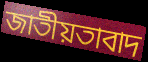
জাতীয়তাবাদ